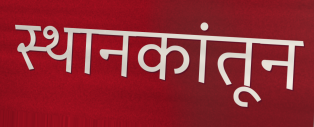
स्थानकांतून